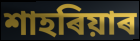
শাহৰিয়াৰ